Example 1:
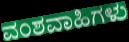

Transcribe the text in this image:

ವಂಶವಾಹಿಗಳು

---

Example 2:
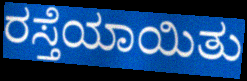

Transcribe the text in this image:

ರಸ್ತೆಯಾಯಿತು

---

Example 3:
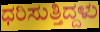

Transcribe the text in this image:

ಧರಿಸುತ್ತಿದ್ದಳು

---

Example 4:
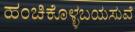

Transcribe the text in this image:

ಹಂಚಿಕೊಳ್ಳಬಯಸುವೆ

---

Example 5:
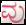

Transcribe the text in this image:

ವು